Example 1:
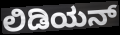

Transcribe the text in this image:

ಲಿಡಿಯನ್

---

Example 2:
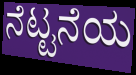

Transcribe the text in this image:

ನೆಟ್ಟನೆಯ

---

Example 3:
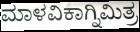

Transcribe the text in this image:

ಮಾಳವಿಕಾಗ್ನಿಮಿತ್ರ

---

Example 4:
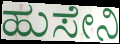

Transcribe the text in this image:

ಹುಸೇನಿ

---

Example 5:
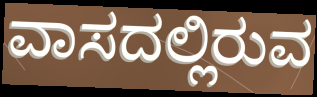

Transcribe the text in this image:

ವಾಸದಲ್ಲಿರುವ